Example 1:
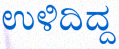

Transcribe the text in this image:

ಉಳಿದಿದ್ದ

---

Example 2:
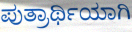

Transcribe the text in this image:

ಪುತ್ರಾರ್ಥಿಯಾಗಿ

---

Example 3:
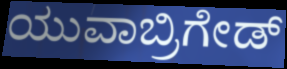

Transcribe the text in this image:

ಯುವಾಬ್ರಿಗೇಡ್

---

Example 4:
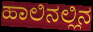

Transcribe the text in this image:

ಹಾಲಿನಲ್ಲಿನ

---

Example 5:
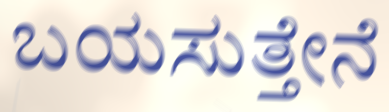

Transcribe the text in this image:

ಬಯಸುತ್ತೇನೆ